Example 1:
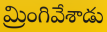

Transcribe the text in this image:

మ్రింగివేశాడు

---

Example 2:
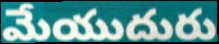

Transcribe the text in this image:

మేయుదురు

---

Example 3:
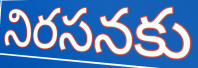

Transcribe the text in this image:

నిరసనకు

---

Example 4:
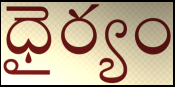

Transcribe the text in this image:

ధైర్యం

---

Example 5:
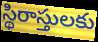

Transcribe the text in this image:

స్థిరాస్తులకు